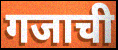
गजाची